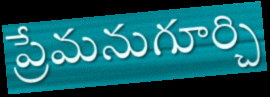
ప్రేమనుగూర్చి